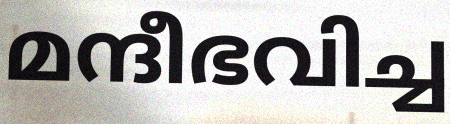
മന്ദീഭവിച്ച